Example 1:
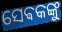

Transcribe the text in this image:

ସେଵକଙ୍କୁ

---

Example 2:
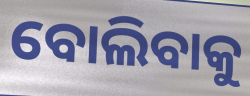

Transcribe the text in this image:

ବୋଲିବାକୁ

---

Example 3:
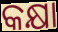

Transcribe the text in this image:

କକ୍ଷା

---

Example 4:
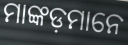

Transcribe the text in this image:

ମାଙ୍କଡ଼ମାନେ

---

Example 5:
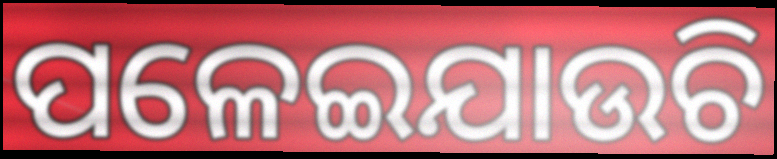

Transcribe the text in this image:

ପଳେଇଯାଉଚି